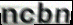
ncbn